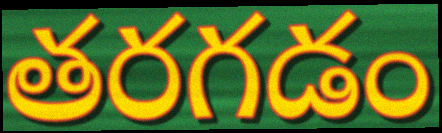
తరగడం